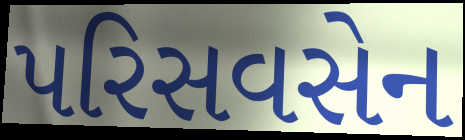
પરિસવસેન